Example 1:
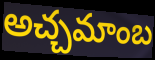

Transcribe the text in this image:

అచ్చమాంబ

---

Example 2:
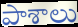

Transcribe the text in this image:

పాశాలు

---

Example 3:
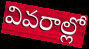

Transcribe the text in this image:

వివరాల్లో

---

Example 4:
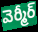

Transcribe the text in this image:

వెర్మీర్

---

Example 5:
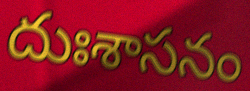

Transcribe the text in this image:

దుఃశాసనం